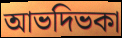
আভদিভকা